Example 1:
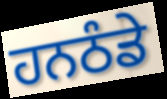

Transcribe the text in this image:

ਹਨਠੰਡੇ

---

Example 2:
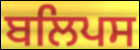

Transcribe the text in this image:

ਬਲਿਪਸ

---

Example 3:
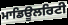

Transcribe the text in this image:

ਮਾਡਿਊਲਰਿਟੀ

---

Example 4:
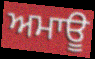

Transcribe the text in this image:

ਅਮਾਊ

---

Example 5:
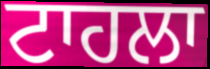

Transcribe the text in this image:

ਟਾਹਲਾ